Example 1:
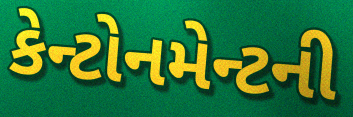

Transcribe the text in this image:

કેન્ટોનમેન્ટની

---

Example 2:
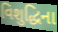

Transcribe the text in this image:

વિશુદ્ધિના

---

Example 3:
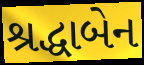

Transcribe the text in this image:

શ્રદ્ધાબેન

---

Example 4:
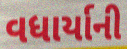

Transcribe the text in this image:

વધાર્યાની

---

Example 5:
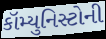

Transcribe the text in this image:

કૉમ્યુનિસ્ટોની